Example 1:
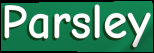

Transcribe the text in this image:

Parsley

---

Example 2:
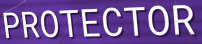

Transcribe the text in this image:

PROTECTOR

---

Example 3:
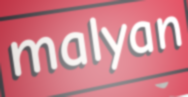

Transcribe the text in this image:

malyan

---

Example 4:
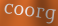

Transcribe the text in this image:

coorg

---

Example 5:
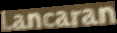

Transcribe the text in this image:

Lancaran